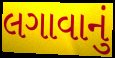
લગાવાનું